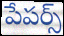
పేపర్స్